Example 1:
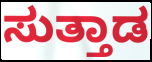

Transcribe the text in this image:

ಸುತ್ತಾಡ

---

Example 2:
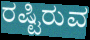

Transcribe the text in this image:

ರಷ್ಟಿರುವ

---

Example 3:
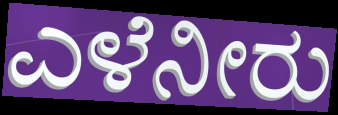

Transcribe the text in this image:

ಎಳೆನೀರು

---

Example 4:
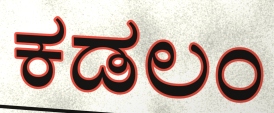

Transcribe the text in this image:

ಕಡಲಂ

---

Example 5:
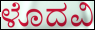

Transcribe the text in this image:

ಳೊದವಿ